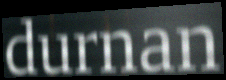
durnan